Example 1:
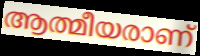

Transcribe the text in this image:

ആത്മീയരാണ്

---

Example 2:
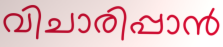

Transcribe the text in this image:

വിചാരിപ്പാൻ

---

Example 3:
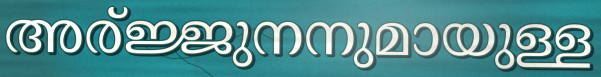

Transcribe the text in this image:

അര്ജ്ജുനനുമായുള്ള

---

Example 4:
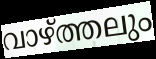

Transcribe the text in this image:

വാഴ്ത്തലും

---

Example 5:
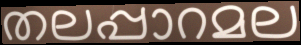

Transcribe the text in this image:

തലപ്പാറമല